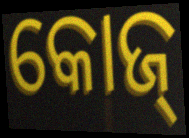
କୋଜ୍